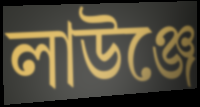
লাউঞ্জে